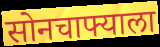
सोनचाफ्याला